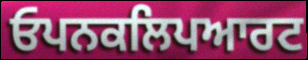
ਓਪਨਕਲਿਪਆਰਟ